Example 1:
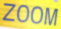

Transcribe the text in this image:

ZOOM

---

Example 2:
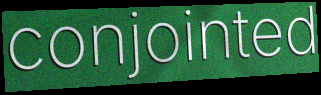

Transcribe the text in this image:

conjointed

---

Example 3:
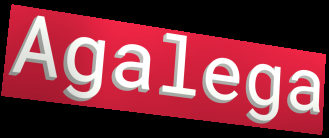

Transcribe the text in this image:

Agalega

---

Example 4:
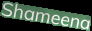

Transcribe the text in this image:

Shameena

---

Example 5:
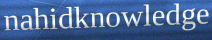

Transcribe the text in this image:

nahidknowledge